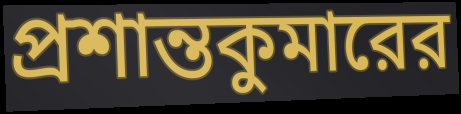
প্রশান্তকুমারের